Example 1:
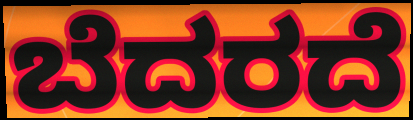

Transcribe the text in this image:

ಬೆದರದೆ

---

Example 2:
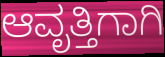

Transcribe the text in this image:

ಆವೃತ್ತಿಗಾಗಿ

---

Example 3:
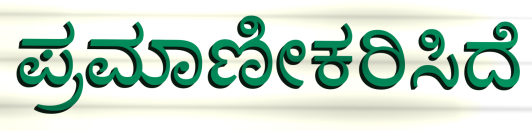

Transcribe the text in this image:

ಪ್ರಮಾಣೀಕರಿಸಿದೆ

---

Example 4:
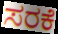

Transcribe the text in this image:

ಸರಕೆ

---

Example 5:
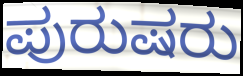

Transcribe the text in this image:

ಪುರುಷರು